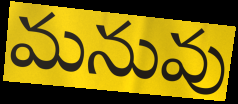
మనువు